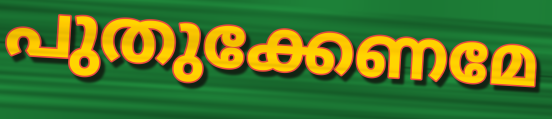
പുതുക്കേണമേ